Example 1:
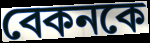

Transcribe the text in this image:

বেকনকে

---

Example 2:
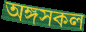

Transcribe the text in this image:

অঙ্গসকল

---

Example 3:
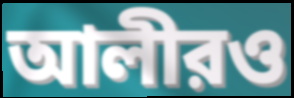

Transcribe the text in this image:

আলীরও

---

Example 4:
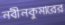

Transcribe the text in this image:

নবীনকুমারের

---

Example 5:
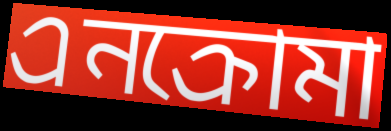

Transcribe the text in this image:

এনক্রোমা